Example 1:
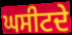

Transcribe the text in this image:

ਘਸੀਟਦੇ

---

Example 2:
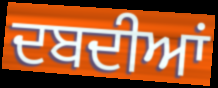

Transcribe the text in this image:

ਦਬਦੀਆਂ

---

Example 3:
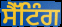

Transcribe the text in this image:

ਸੈੱਟਿੰਗ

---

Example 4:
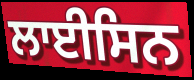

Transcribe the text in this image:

ਲਾਈਸਿਨ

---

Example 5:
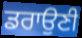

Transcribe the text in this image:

ਡਰਾਉਣੀ